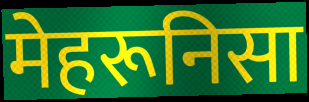
मेहरूनिसा